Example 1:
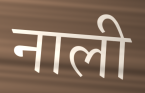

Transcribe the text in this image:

नाली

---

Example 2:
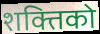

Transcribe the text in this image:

शक्तिको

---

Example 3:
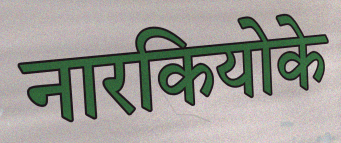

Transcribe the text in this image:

नारकियोके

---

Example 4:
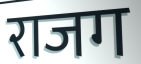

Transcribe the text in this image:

राजग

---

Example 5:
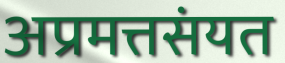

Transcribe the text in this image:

अप्रमत्तसंयत